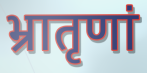
भ्रातृणां